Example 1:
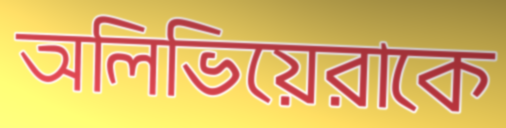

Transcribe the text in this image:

অলিভিয়েরাকে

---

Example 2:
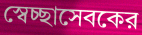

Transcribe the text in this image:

স্বেচ্ছাসেবকের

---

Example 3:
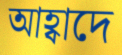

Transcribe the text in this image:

আহ্বাদে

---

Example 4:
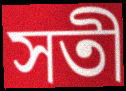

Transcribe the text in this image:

সতী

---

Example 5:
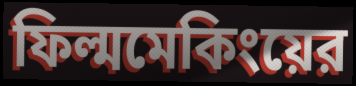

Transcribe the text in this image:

ফিল্মমেকিংয়ের